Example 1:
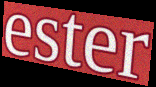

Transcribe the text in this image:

ester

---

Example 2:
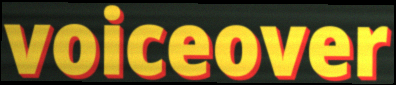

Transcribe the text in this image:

voiceover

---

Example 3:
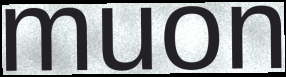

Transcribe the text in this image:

muon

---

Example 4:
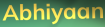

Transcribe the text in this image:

Abhiyaan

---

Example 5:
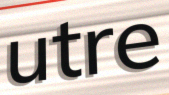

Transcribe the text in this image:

utre